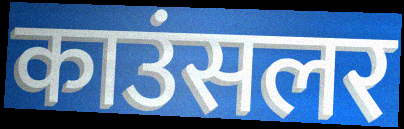
काउंसलर